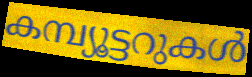
കമ്പ്യൂട്ടറുകൾ